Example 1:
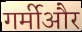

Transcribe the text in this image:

गर्मीऔर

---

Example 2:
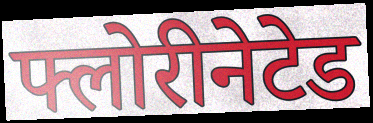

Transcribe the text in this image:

फ्लोरीनेटेड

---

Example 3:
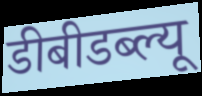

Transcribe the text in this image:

डीबीडब्ल्यू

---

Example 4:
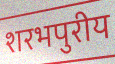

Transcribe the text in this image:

शरभपुरीय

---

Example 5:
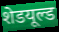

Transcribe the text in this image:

शेडयूल्ड